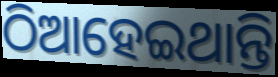
ଠିଆହେଇଥାନ୍ତି